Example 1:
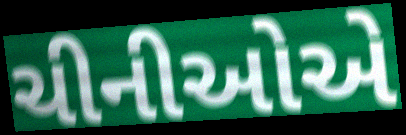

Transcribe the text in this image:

ચીનીઓએ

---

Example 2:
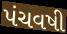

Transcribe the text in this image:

પંચવષી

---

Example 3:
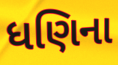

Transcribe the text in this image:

ધણિના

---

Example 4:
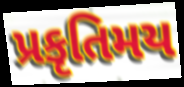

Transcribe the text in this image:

પ્રકૃતિમય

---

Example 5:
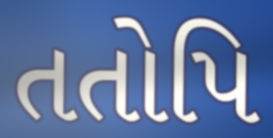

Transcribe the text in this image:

તતોપિ